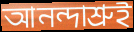
আনন্দাশ্রুই